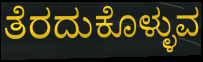
ತೆರದುಕೊಳ್ಳುವ